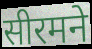
सीरमने